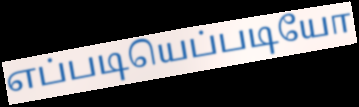
எப்படியெப்படியோ